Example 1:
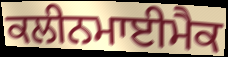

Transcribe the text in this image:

ਕਲੀਨਮਾਈਮੈਕ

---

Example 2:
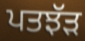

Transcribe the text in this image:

ਪਤਝੱੜ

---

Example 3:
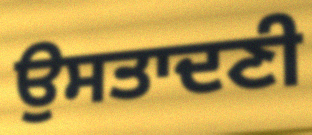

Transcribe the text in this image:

ਉਸਤਾਦਣੀ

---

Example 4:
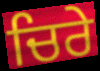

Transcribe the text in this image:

ਚਿਰੇ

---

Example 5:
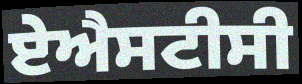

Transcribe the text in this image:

ਏਐਸਟੀਸੀ